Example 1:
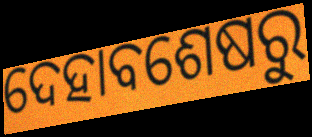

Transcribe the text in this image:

ଦେହାବଶେଷରୁ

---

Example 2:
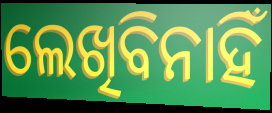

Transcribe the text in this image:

ଲେଖିବିନାହିଁ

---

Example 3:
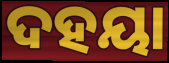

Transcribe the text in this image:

ଦହୟା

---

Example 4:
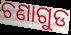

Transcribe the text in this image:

ଚଣାଗୁଡ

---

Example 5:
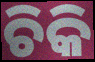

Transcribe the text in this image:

ଚିକି